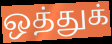
ஒத்துக்